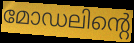
മോഡലിന്റെ